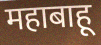
महाबाहू